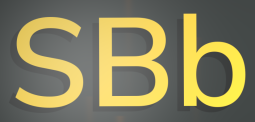
SBb